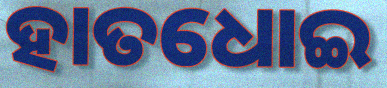
ହାତଧୋଇ